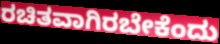
ರಚಿತವಾಗಿರಬೇಕೆಂದು